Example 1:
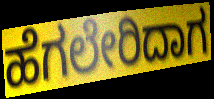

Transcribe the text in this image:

ಹೆಗಲೇರಿದಾಗ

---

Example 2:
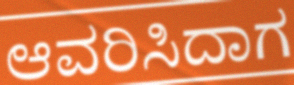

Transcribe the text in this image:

ಆವರಿಸಿದಾಗ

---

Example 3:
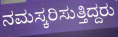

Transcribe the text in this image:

ನಮಸ್ಕರಿಸುತ್ತಿದ್ದರು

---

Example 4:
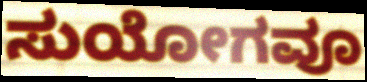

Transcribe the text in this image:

ಸುಯೋಗವೂ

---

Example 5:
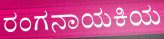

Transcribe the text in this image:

ರಂಗನಾಯಕಿಯ